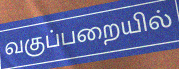
வகுப்பறையில்